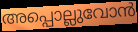
അപ്പൊല്ലുവോൻ